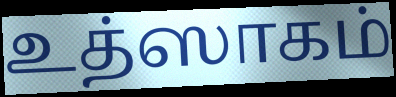
உத்ஸாகம்